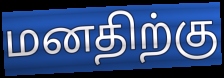
மனதிற்கு